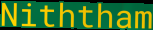
Niththam